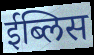
ईब्लिस